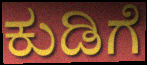
ಕುಡಿಗೆ